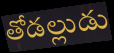
తోడల్లుడు